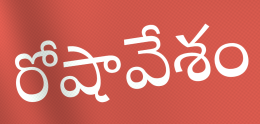
రోషావేశం